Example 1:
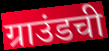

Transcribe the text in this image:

ग्राउंडची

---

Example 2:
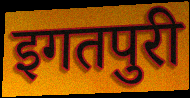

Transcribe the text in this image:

इगतपुरी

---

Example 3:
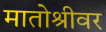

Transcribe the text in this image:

मातोश्रीवर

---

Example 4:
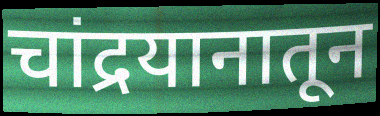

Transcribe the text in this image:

चांद्रयानातून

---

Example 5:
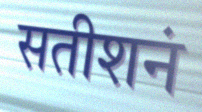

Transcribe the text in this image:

सतीशनं